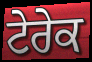
ਟੇਰੇਕ